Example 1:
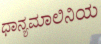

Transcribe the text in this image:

ಧಾನ್ಯಮಾಲಿನಿಯ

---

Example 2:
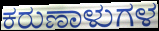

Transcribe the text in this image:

ಕರುಣಾಳುಗಳ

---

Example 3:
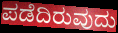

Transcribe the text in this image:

ಪಡೆದಿರುವುದು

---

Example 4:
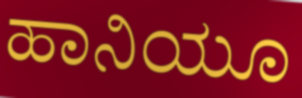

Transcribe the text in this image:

ಹಾನಿಯೂ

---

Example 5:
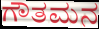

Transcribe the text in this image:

ಗೌತಮನ